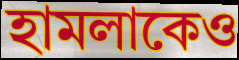
হামলাকেও